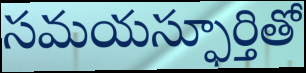
సమయస్ఫూర్తితో